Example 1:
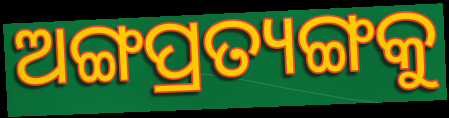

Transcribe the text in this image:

ଅଙ୍ଗପ୍ରତ୍ୟଙ୍ଗକୁ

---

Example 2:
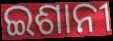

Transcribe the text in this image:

ଇଶାନୀ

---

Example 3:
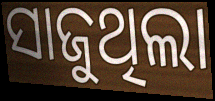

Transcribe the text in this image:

ସାଜୁଥିଲା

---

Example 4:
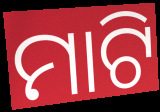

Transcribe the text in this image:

ମାଟି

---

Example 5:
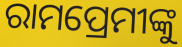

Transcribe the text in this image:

ରାମପ୍ରେମୀଙ୍କୁ